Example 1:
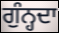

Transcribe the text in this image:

ਗੁੰਨ੍ਹਦਾ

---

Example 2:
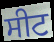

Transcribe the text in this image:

ਸੀਟ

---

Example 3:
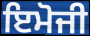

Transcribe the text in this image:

ਇਮੋਜੀ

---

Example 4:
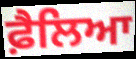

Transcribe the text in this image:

ਫ਼ੈਲਿਆ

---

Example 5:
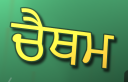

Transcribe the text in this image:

ਚੈਥਮ